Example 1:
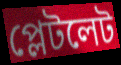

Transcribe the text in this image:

প্লেটলেট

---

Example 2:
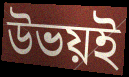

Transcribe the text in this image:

উভয়ই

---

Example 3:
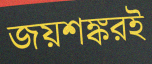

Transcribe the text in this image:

জয়শঙ্করই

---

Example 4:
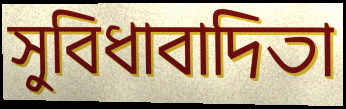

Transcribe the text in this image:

সুবিধাবাদিতা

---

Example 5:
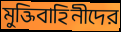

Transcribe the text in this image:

মুক্তিবাহিনীদের